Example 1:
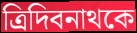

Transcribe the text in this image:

ত্রিদিবনাথকে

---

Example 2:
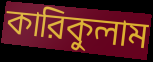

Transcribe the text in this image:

কারিকুলাম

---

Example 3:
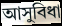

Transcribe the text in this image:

আসুবিধা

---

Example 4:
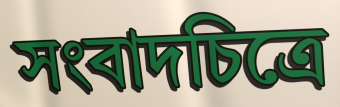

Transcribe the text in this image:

সংবাদচিত্রে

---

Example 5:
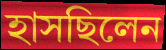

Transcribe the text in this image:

হাসছিলেন